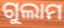
ଗୁଲାମ